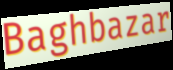
Baghbazar